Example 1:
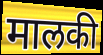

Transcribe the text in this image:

मालकी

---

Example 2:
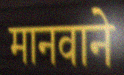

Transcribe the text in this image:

मानवाने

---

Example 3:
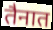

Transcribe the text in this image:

तैनात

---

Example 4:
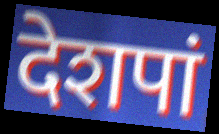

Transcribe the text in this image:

देशपां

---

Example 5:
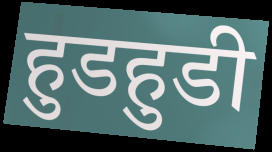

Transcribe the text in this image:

हुडहुडी